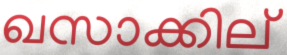
ഖസാക്കില്